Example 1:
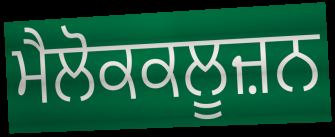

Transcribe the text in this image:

ਮੈਲੋਕਕਲੂਜ਼ਨ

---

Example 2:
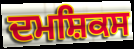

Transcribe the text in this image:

ਦਮਸ਼ਿਕਸ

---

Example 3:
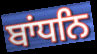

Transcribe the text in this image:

ਬਾਂਧਨਿ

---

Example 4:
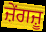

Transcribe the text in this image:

ਜ਼ੇਂਗਜ਼ੂ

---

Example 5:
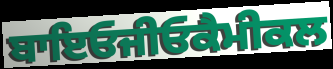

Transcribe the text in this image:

ਬਾਇਓਜੀਓਕੈਮੀਕਲ